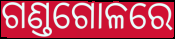
ଗଣ୍ଡଗୋଳରେ